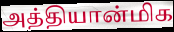
அத்தியான்மிக